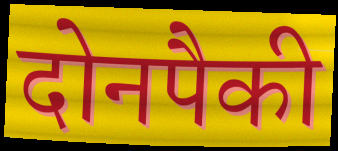
दोनपैकी